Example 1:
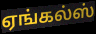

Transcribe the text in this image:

ஏங்கல்ஸ்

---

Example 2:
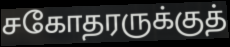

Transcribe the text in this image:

சகோதரருக்குத்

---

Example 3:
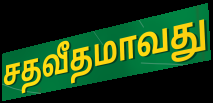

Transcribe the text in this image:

சதவீதமாவது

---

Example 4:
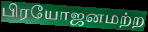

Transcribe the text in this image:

பிரயோஜனமற்ற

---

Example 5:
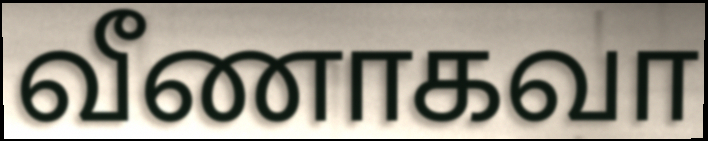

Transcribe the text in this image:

வீணாகவா